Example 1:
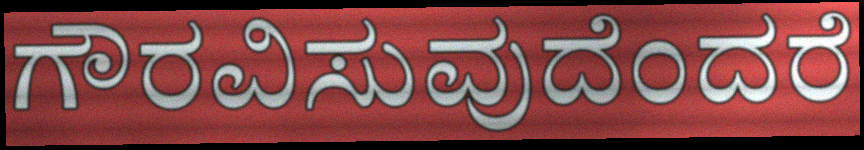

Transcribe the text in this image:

ಗೌರವಿಸುವುದೆಂದರೆ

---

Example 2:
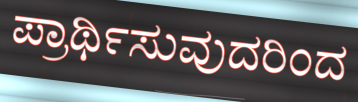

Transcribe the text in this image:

ಪ್ರಾರ್ಥಿಸುವುದರಿಂದ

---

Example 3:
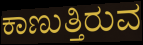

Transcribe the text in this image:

ಕಾಣುತ್ತಿರುವ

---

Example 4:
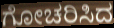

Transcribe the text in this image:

ಗೋಚರಿಸಿದ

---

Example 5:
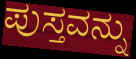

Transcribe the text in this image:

ಪುಸ್ತವನ್ನು